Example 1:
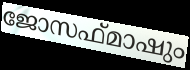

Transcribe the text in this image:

ജോസഫ്മാഷും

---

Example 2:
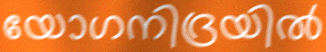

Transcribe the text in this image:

യോഗനിദ്രയിൽ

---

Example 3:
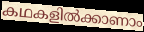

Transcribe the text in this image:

കഥകളിൽക്കാണാം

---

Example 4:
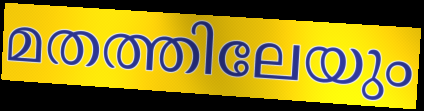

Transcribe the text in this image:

മതത്തിലേയും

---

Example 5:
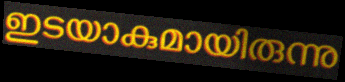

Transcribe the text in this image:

ഇടയാകുമായിരുന്നു